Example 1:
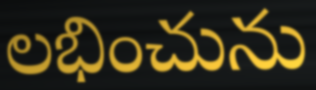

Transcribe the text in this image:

లభించును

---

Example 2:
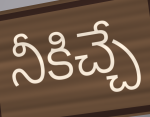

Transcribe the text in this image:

నీకిచ్చే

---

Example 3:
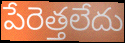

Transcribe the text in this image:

పేరెత్తలేదు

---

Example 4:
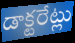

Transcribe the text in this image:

డాక్టరేట్లు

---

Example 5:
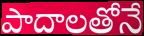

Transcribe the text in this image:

పాదాలతోనే